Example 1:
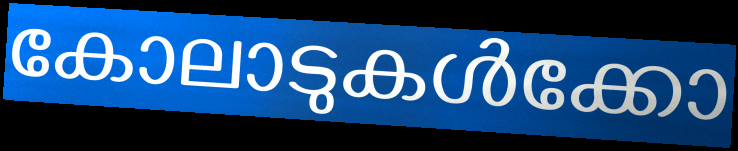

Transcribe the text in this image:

കോലാടുകൾക്കോ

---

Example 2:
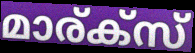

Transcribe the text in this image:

മാര്ക്സ്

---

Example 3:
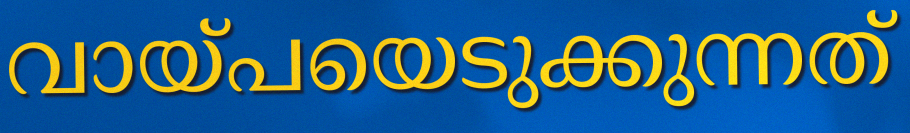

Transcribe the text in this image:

വായ്പയെടുക്കുന്നത്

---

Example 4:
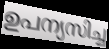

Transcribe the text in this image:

ഉപന്യസിച്ച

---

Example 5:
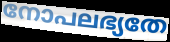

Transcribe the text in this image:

നോപലഭ്യതേ